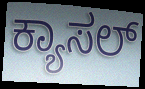
ಕ್ಯಾಸಲ್